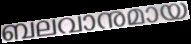
ബലവാനുമായ